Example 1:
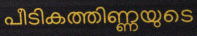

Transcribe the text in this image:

പീടികത്തിണ്ണയുടെ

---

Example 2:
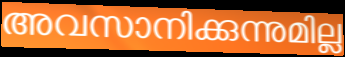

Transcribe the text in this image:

അവസാനിക്കുന്നുമില്ല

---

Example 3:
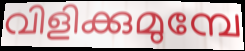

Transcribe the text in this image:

വിളിക്കുമുമ്പേ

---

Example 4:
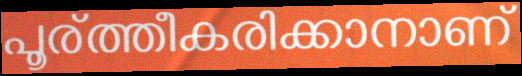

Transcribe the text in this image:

പൂര്ത്തീകരിക്കാനാണ്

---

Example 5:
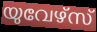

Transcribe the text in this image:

യുവേഴ്സ്